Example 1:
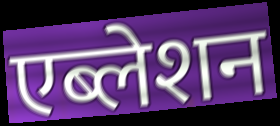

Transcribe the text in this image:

एब्लेशन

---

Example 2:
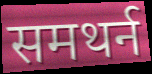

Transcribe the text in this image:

समथर्न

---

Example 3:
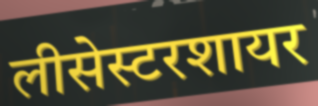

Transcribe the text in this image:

लीसेस्टरशायर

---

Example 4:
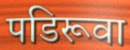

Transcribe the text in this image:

पडिरूवा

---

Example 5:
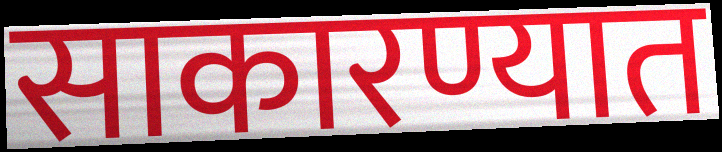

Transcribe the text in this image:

साकारण्यात